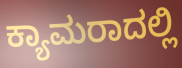
ಕ್ಯಾಮರಾದಲ್ಲಿ